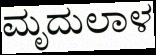
ಮೃದುಲಾಳ